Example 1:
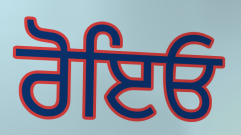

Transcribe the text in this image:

ਰੋਇਓ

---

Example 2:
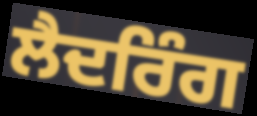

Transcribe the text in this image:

ਲੈਦਰਿੰਗ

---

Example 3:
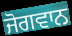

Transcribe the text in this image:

ਜੋਗਵਾਨ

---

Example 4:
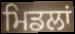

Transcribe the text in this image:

ਮਿਡਲਾਂ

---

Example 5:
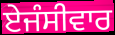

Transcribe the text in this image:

ਏਜੰਸੀਵਾਰ